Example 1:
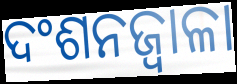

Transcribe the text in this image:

ଦଂଶନଜ୍ୱାଳା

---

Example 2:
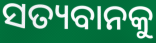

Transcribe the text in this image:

ସତ୍ୟବାନକୁ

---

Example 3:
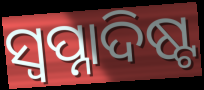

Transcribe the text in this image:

ସ୍ୱପ୍ନାଦିଷ୍ଟ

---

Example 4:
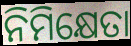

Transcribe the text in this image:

ନିମିକ୍ଷେତା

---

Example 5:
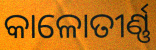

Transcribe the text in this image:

କାଳୋତୀର୍ଣ୍ଣ